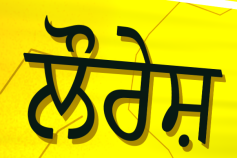
ਲੌਰੇਸ਼